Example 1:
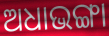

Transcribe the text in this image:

ଅଧାଭଙ୍ଗା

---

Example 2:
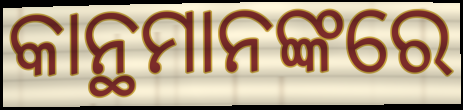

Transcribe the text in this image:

କାନ୍ଥମାନଙ୍କରେ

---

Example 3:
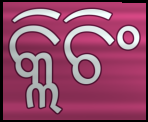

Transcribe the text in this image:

କ୍ଲିଚିଂ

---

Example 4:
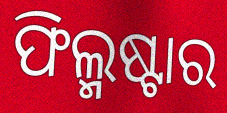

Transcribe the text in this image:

ଫିଲ୍ମଷ୍ଟାର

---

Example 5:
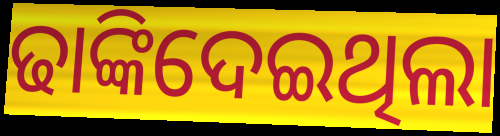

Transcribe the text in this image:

ଢାଙ୍କିଦେଇଥିଲା